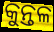
କୁନ୍ତଳ